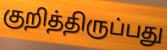
குறித்திருப்பது